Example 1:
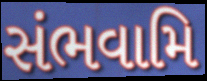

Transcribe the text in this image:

સંભવામિ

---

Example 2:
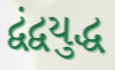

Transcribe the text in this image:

દ્વંદ્વયુદ્ધ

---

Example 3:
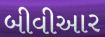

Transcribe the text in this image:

બીવીઆર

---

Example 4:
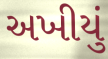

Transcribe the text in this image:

અખીયું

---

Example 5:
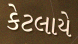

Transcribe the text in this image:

કેટલાયે